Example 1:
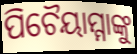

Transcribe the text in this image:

ପିଚୈୟାମ୍ମାଙ୍କୁ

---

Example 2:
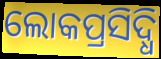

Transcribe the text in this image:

ଲୋକପ୍ରସିଦ୍ଧି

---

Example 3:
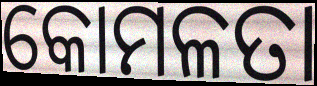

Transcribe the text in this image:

କୋମଳତା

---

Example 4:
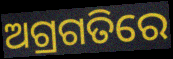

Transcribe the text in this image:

ଅଗ୍ରଗତିରେ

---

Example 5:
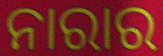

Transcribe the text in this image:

ନାରାର